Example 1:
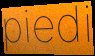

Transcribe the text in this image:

piedi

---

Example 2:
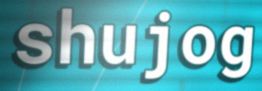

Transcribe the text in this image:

shujog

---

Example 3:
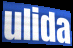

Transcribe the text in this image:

ulida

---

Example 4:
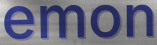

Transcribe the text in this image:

emon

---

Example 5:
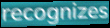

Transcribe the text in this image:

recognizes